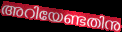
അറിയേണ്ടതിനു